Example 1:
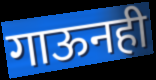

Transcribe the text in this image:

गाऊनही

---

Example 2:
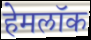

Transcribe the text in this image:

हेमलॉक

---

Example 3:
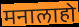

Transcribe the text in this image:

मनालाहो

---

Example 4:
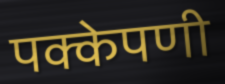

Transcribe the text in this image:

पक्केपणी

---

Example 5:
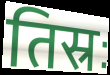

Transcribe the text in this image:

तिस्रः